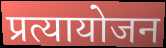
प्रत्यायोजन